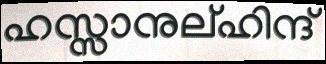
ഹസ്സാനുല്ഹിന്ദ്